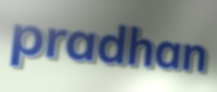
pradhan